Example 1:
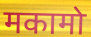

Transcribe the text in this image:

मकामो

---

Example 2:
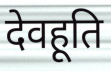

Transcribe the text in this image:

देवहूति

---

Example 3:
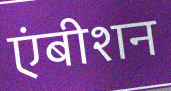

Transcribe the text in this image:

एंबीशन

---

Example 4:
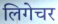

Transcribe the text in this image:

लिगेचर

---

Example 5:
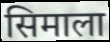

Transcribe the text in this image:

सिमाला